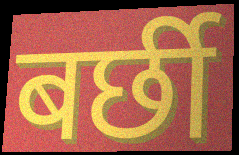
बर्छी